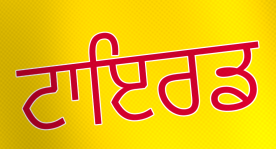
ਟਾਇਰਡ